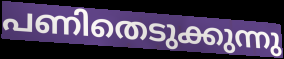
പണിതെടുക്കുന്നു